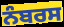
ਨੰਬਰਸ